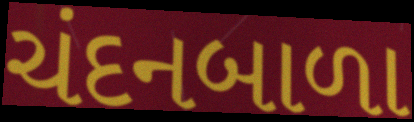
ચંદનબાળા